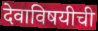
देवाविषयीची